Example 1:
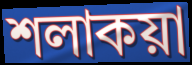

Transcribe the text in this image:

শলাকয়া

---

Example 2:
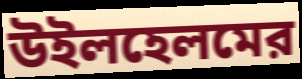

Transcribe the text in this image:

উইলহেলমের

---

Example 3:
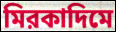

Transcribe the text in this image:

মিরকাদিমে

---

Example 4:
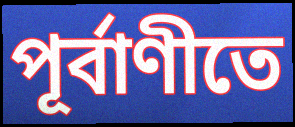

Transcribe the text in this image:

পূর্বাণীতে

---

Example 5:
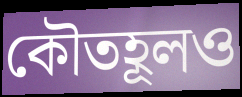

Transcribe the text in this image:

কৌতহূলও